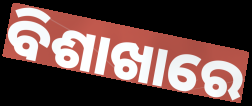
ବିଶାଖାରେ